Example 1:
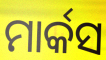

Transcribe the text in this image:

ମାର୍କସ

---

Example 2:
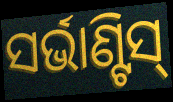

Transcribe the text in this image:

ସର୍ଭାଣ୍ଟିସ୍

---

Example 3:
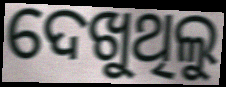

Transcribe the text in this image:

ଦେଖୁଥିଲୁ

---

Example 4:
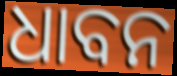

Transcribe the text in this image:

ଧାବନ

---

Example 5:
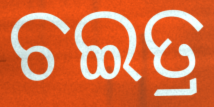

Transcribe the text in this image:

ଚଇତ୍ର